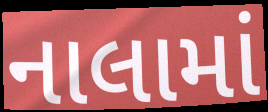
નાલામાં